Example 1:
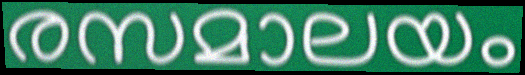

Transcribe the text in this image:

രസമാലയം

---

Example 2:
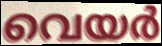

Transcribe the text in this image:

വെയർ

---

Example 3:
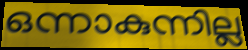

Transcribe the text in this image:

ഒന്നാകുന്നില്ല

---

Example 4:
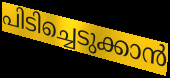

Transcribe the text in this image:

പിടിച്ചെടുക്കാൻ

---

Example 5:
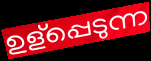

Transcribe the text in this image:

ഉള്പ്പെടുന്ന